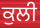
ਕੁਲੀ